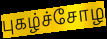
புகழ்ச்சோழ